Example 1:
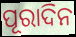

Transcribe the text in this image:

ପୂରାଦିନ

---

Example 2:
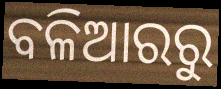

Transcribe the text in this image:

ବଳିଆରରୁ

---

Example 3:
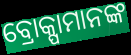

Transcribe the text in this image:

ବ୍ରୋକ୍ପାମାନଙ୍କ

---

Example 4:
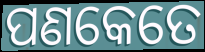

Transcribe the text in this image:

ପଣକେତେ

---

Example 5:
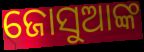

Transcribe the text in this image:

ଜୋସୁଆଙ୍କ